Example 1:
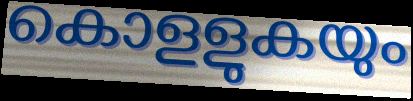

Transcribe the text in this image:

കൊളളുകയും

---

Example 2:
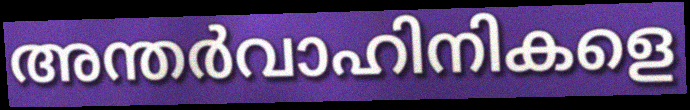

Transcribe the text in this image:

അന്തർവാഹിനികളെ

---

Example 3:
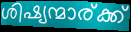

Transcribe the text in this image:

ശിഷ്യന്മാര്ക്ക്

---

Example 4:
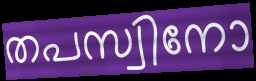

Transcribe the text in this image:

തപസ്വിനോ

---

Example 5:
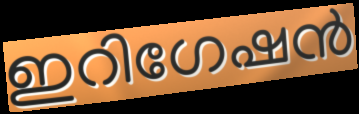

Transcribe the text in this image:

ഇറിഗേഷൻ